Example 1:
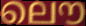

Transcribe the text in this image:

ലൌ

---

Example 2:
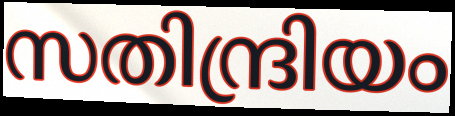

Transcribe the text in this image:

സതിന്ദ്രിയം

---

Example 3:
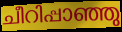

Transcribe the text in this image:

ചീറിപ്പാഞ്ഞു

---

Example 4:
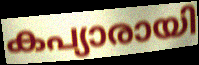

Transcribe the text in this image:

കപ്യാരായി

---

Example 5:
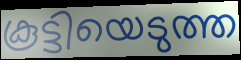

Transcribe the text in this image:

കൂട്ടിയെടുത്ത